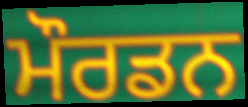
ਮੌਰਡਨ